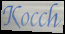
Kocch